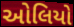
ઓલિયો